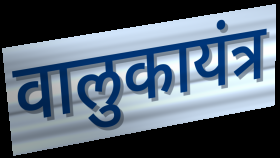
वालुकायंत्र